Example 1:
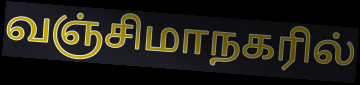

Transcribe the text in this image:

வஞ்சிமாநகரில்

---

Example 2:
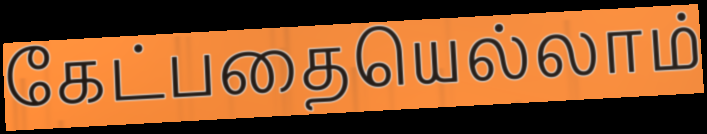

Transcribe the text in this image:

கேட்பதையெல்லாம்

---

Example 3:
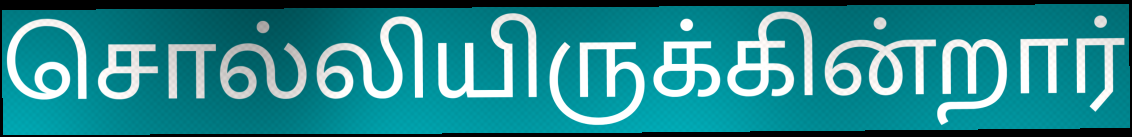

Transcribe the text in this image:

சொல்லியிருக்கின்றார்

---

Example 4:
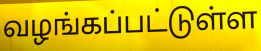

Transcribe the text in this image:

வழங்கப்பட்டுள்ள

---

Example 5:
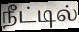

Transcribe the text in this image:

நீட்டில்